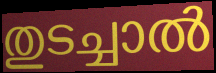
തുടച്ചാൽ